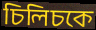
চিলিচকে